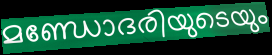
മണ്ഡോദരിയുടെയും